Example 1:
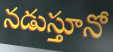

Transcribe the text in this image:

నడుస్తూనో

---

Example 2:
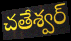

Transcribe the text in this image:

చతేశ్వర్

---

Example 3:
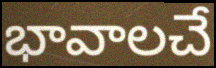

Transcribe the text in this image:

భావాలచే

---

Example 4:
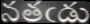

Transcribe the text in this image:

నతఁడు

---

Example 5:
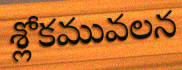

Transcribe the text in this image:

శ్లోకమువలన